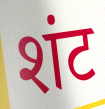
शंट